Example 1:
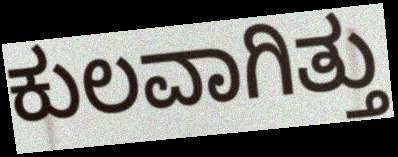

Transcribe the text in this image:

ಕುಲವಾಗಿತ್ತು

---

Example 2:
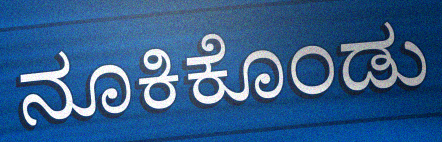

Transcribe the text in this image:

ನೂಕಿಕೊಂಡು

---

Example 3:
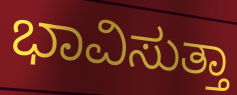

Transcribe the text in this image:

ಭಾವಿಸುತ್ತಾ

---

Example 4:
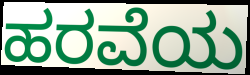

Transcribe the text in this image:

ಹರವೆಯ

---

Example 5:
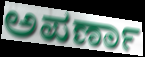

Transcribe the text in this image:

ಅಪರ್ಣಾ